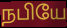
நபியே